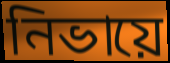
নিভায়ে